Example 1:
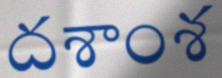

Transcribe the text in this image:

దశాంశ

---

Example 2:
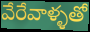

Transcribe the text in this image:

వేరేవాళ్ళతో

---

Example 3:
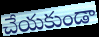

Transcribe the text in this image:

చేయకుండా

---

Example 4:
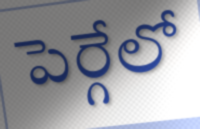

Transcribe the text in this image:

పెర్గేలో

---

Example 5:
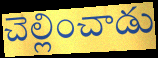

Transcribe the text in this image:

చెల్లించాడు